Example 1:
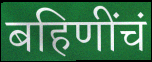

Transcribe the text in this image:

बहिणींचं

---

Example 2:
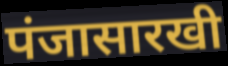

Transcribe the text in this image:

पंजासारखी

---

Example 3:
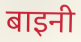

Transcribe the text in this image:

बाइनी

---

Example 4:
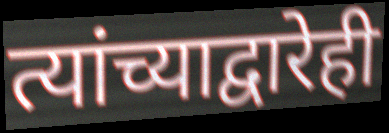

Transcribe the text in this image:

त्यांच्याद्वारेही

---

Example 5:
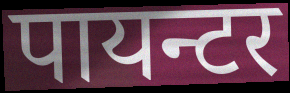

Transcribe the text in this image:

पायन्टर